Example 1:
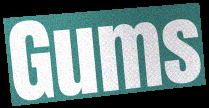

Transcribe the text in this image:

Gums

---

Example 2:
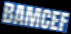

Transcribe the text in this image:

BAMCEF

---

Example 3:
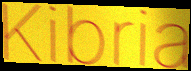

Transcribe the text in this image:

Kibria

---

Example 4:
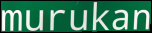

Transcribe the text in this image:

murukan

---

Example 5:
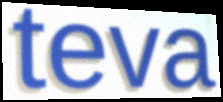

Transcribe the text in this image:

teva